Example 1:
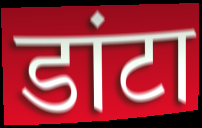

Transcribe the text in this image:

डांटा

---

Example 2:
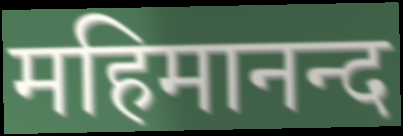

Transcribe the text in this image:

महिमानन्द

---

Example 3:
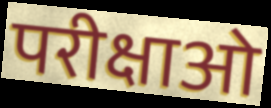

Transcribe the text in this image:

परीक्षाओ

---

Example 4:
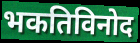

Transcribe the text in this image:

भकतिविनोद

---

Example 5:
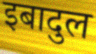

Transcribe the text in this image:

इबादुल